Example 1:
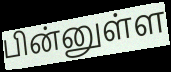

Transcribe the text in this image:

பின்னுள்ள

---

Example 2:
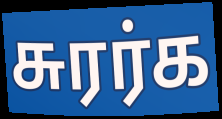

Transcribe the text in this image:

சுரர்க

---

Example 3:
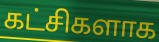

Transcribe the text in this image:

கட்சிகளாக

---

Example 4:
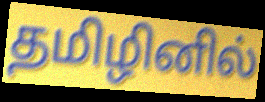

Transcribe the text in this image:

தமிழினில்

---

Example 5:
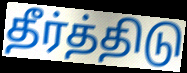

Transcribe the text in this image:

தீர்த்திடு